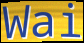
Wai